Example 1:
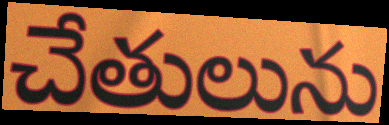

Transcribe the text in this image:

చేతులును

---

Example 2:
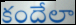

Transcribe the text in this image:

కందేలా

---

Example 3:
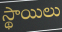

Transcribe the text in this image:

స్థాయిలు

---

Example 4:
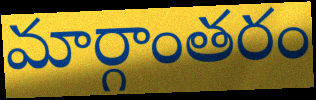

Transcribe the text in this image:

మార్గాంతరం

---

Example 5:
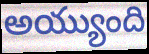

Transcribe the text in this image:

అయ్యుంది